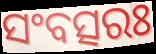
ସଂବତ୍ସରଃ